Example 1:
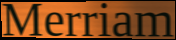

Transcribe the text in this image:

Merriam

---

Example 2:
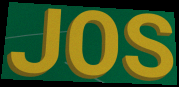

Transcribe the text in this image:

JOS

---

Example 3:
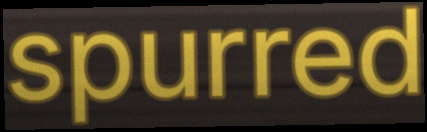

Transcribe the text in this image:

spurred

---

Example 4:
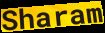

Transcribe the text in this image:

Sharam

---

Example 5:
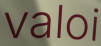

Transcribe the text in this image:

valoi